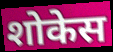
शोकेस